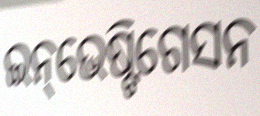
ଇନ୍‌ଭେଷ୍ଟିଗେସନ